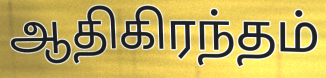
ஆதிகிரந்தம்